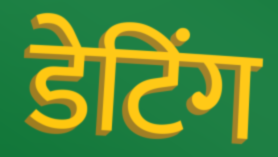
डेटिंग